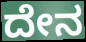
ದೇನ